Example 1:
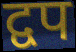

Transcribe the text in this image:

द्वप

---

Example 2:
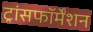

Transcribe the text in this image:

ट्रांसफॉर्मेंशन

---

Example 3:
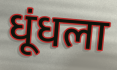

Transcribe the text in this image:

धूंधला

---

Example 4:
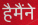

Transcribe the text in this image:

हैमैंने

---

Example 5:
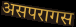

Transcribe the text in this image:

असपरागस